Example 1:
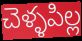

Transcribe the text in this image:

చెళ్ళపిల్ల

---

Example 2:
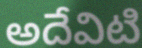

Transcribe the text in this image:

అదేవిటి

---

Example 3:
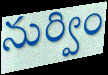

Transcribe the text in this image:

నుర్విం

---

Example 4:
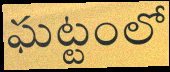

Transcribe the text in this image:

ఘట్టంలో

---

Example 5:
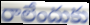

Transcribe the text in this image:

రాలేందుకు